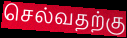
செல்வதற்கு